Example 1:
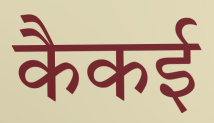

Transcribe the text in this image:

कैकई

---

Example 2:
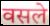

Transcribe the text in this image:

वसले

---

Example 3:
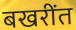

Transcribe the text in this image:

बखरींत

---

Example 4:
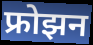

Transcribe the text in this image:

फ्रोझन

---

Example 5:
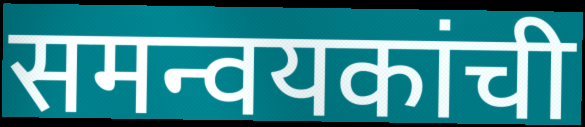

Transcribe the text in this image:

समन्वयकांची